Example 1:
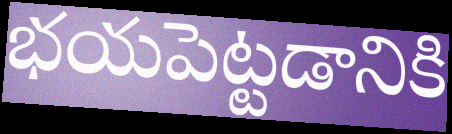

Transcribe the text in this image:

భయపెట్టడానికి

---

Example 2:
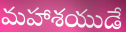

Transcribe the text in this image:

మహాశయుడే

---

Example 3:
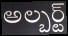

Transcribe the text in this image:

అల్బర్ట్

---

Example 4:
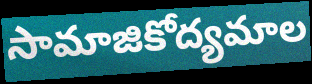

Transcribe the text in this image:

సామాజికోద్యమాల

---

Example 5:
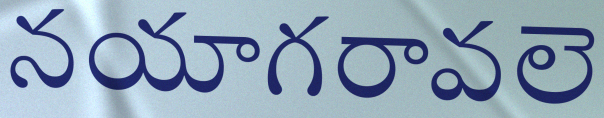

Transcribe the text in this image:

నయాగరావలె